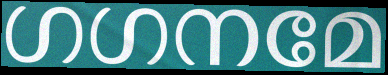
ഗഗനമേ